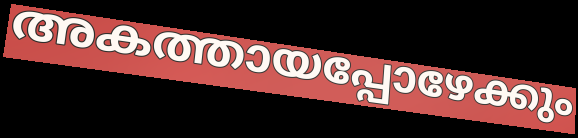
അകത്തായപ്പോഴേക്കും